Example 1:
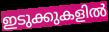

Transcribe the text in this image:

ഇടുക്കുകളിൽ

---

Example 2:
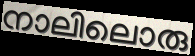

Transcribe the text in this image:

നാലിലൊരു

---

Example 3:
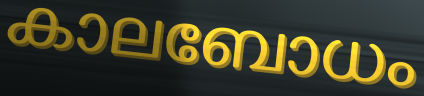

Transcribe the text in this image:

കാലബോധം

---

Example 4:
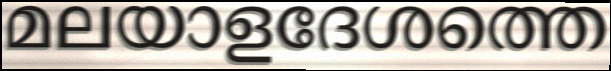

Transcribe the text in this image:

മലയാളദേശത്തെ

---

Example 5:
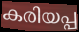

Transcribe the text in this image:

കരിയപ്പ